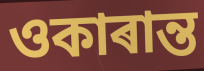
ওকাৰান্ত